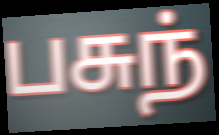
பசுந்